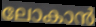
ലോകാൻ